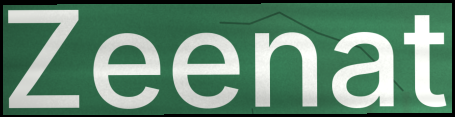
Zeenat